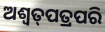
ଅଶ୍ଵତ୍‌ପତ୍ରପରି